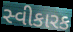
સ્વીકારક